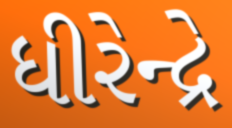
ધીરેન્દ્રે